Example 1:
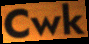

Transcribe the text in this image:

Cwk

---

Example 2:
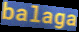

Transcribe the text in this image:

balaga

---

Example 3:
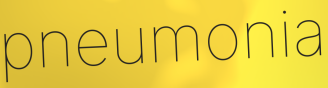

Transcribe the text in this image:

pneumonia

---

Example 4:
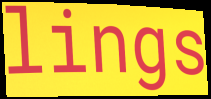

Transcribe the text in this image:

lings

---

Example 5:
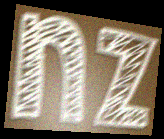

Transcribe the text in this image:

nz